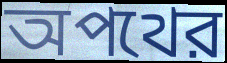
অপথের